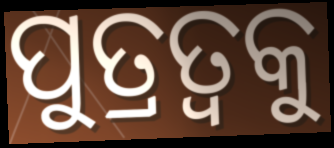
ପୁତ୍ରତ୍ଵକୁ